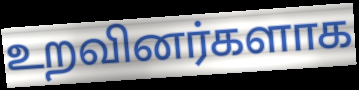
உறவினர்களாக